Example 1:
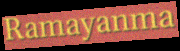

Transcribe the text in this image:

Ramayanma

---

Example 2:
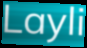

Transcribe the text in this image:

Layli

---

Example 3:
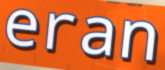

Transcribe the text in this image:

eran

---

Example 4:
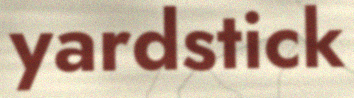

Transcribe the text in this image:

yardstick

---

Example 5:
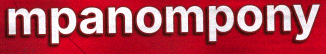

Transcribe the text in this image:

mpanompony